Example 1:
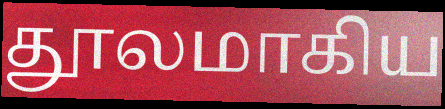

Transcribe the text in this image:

தூலமாகிய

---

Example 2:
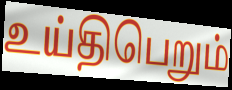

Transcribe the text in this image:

உய்திபெறும்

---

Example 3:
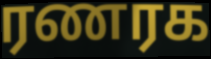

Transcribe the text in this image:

ரணரக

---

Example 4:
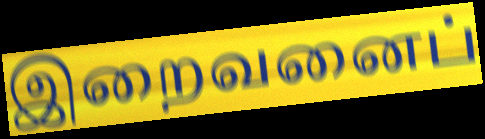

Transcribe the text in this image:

இறைவனைப்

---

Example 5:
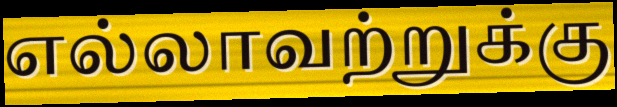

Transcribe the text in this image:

எல்லாவற்றுக்கு